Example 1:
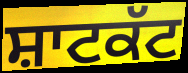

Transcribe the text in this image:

ਸ਼ਾਟਕੱਟ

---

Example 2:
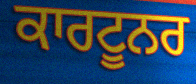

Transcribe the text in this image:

ਕਾਰਟੂਨਰ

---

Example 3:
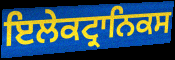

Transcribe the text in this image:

ਇਲੇਕਟ੍ਰਾਨਿਕਸ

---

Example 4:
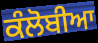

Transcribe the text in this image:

ਕੰਲੋਬੀਆ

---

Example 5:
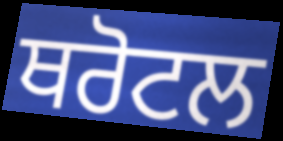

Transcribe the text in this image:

ਥਰੋਟਲ